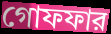
গোফফার